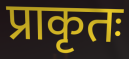
प्राकृतः